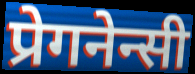
प्रेगनेन्सी